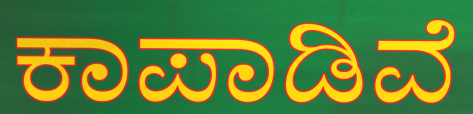
ಕಾಪಾಡಿವೆ